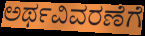
ಅರ್ಥವಿವರಣೆಗೆ